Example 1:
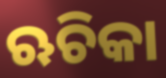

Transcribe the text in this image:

ଋଚିକା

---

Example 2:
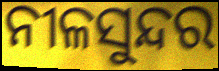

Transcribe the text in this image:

ନୀଳସୁନ୍ଦର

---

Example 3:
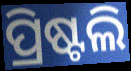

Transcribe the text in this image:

ପ୍ରିଷ୍ଟଲି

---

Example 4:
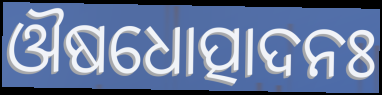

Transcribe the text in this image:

ଔଷଧୋତ୍ପାଦନଃ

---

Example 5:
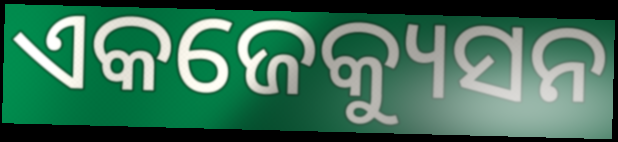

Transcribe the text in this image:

ଏକଜେକ୍ୟୁସନ